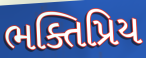
ભક્તિપ્રિય